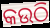
କଉଠି